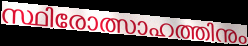
സ്ഥിരോത്സാഹത്തിനും